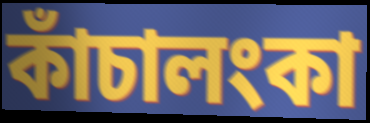
কাঁচালংকা